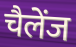
चैलेंज